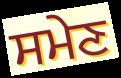
ਸਮੇਣ